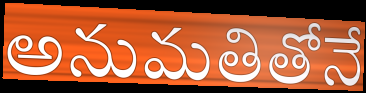
అనుమతితోనే